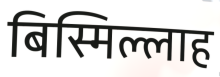
बिस्मिल्लाह